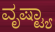
ವೃಷ್ಟ್ಯಾ